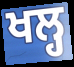
ਖਲ੍ਹ